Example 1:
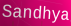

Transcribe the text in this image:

Sandhya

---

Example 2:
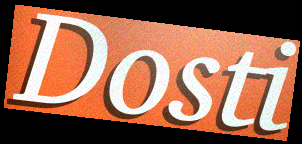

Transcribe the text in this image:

Dosti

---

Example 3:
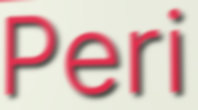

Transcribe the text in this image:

Peri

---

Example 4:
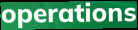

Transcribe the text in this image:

operations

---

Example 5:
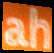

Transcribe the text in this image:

ah